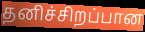
தனிச்சிறப்பான